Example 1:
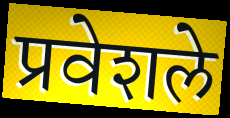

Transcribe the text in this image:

प्रवेशले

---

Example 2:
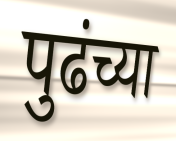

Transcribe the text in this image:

पुढंच्या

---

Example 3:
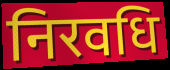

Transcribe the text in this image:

निरवधि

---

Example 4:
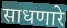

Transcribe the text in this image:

साधणारे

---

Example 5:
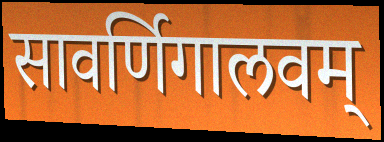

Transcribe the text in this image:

सावर्णिगालवम्